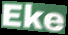
Eke